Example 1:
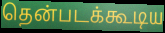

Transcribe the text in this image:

தென்படக்கூடிய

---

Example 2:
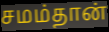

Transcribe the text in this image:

சமம்தான்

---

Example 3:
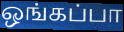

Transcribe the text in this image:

ஒங்கப்பா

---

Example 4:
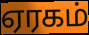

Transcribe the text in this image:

ஏரகம்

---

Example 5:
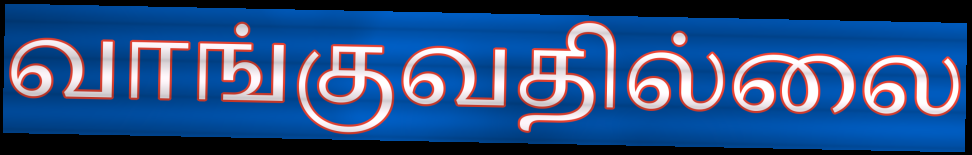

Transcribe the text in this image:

வாங்குவதில்லை